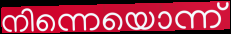
നിന്നെയൊന്ന്